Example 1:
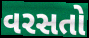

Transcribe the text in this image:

વરસતો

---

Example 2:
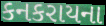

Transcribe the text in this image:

કનકરાયના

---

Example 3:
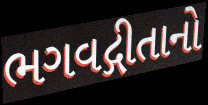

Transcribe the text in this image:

ભગવદ્ગીતાનો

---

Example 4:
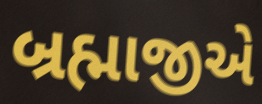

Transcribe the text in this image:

બ્રહ્માજીએ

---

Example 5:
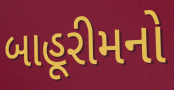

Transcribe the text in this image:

બાહૂરીમનો